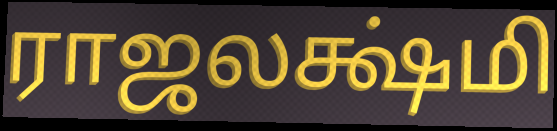
ராஜலக்ஷ்மி